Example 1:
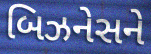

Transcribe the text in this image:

બિઝનેસને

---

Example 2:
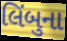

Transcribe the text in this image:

લિંબુના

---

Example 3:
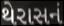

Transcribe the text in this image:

થેરાસનં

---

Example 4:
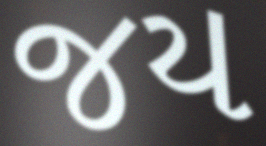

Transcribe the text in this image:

જય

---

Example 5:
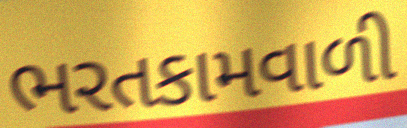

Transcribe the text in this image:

ભરતકામવાળી